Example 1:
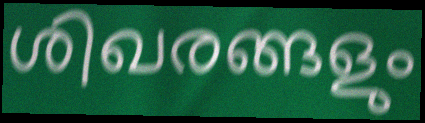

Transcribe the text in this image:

ശിഖരങ്ങളും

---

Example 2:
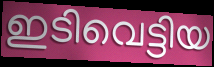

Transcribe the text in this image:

ഇടിവെട്ടിയ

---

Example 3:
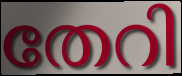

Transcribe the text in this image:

തേറി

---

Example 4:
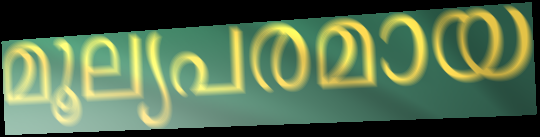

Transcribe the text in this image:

മൂല്യപരമായ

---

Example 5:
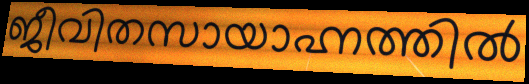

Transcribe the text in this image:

ജീവിതസായാഹ്നത്തിൽ